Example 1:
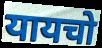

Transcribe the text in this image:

यायचो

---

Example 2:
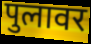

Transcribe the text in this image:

पुलावर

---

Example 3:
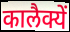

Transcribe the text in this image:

कालैक्यें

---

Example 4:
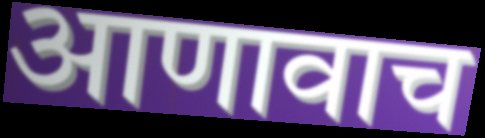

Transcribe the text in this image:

आणावाच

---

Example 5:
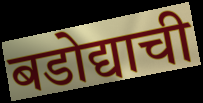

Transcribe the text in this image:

बडोद्याची